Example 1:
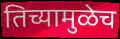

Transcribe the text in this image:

तिच्यामुळेच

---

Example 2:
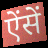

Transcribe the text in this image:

ऐंसें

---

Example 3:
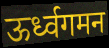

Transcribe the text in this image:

ऊर्ध्वगमन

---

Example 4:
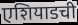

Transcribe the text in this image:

एशियाडची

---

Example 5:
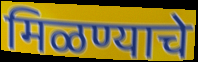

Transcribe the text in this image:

मिळण्याचे